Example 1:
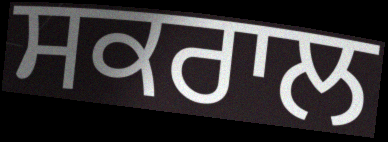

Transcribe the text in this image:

ਸਕਰਾਲ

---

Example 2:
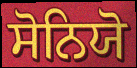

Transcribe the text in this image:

ਸੋਨਿਯੋ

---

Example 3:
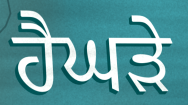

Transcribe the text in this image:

ਹੈਘੜੇ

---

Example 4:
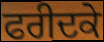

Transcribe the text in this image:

ਫਰੀਦਕੇ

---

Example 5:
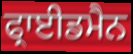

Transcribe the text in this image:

ਫ੍ਰਾਈਡਮੈਨ